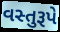
વસ્તુરૂપે